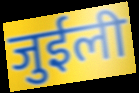
जुईली